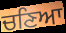
ਚਣਿਆ